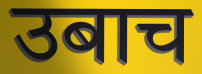
उबाच